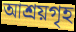
আশ্ৰয়গৃহ